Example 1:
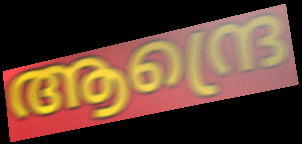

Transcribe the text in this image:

ആന്ദ്രെ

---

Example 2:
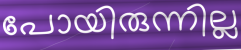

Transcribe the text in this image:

പോയിരുന്നില്ല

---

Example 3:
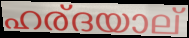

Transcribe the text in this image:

ഹര്ദയാല്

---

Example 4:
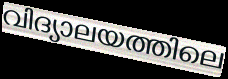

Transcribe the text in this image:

വിദ്യാലയത്തിലെ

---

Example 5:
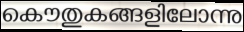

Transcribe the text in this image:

കൌതുകങ്ങളിലോന്നു